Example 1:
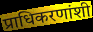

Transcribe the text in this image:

प्राधिकरणांशी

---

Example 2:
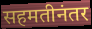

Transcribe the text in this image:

सहमतीनंतर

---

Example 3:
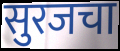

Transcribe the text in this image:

सुरजचा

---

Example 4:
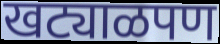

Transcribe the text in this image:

खट्याळपण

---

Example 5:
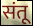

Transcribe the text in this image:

संतू